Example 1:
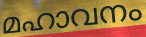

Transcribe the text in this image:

മഹാവനം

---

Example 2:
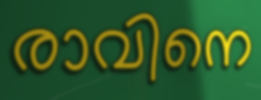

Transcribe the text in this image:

രാവിനെ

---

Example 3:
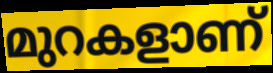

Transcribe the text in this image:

മുറകളാണ്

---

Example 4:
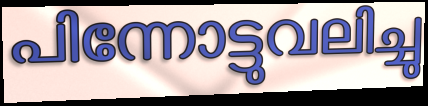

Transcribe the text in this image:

പിന്നോട്ടുവലിച്ചു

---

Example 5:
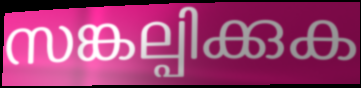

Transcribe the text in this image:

സങ്കല്പിക്കുക